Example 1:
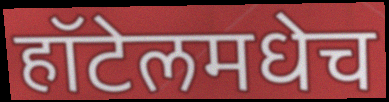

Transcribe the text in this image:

हॉटेलमधेच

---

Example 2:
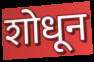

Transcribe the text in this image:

शोधून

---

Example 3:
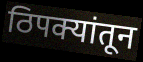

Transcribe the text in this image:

ठिपक्यांतून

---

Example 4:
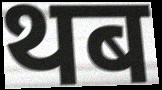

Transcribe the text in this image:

थब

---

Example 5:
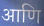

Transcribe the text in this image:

आणि